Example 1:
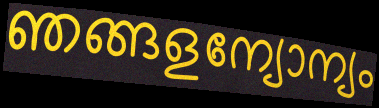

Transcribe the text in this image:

ഞങ്ങളന്യോന്യം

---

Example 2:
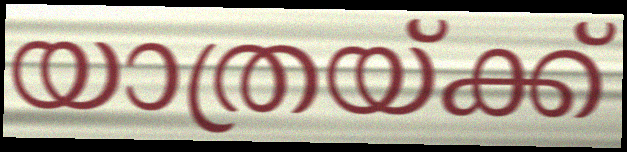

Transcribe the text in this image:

യാത്രയ്ക്ക്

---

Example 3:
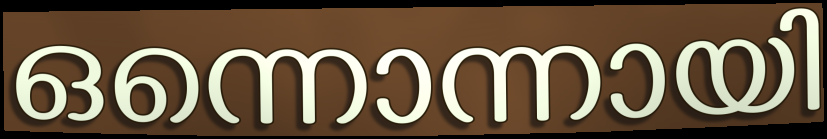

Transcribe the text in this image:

ഒന്നൊന്നായി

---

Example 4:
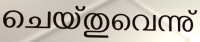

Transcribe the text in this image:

ചെയ്തുവെന്നു്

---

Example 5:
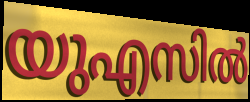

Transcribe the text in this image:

യുഎസിൽ